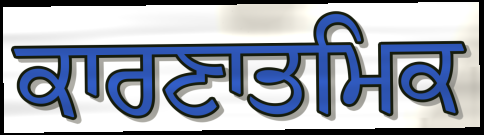
ਕਾਰਣਾਤਮਿਕ